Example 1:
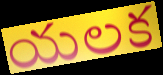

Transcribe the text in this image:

యలక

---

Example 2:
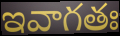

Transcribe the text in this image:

ఇవాగతః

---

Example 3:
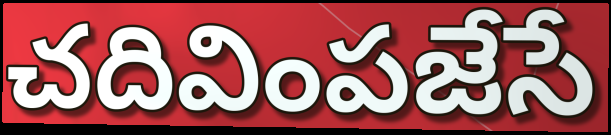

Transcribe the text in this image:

చదివింపజేసే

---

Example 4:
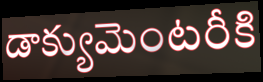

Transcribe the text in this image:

డాక్యుమెంటరీకి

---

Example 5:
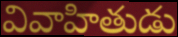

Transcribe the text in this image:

వివాహితుడు